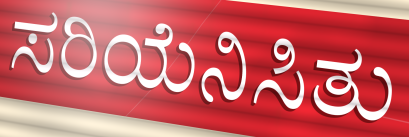
ಸರಿಯೆನಿಸಿತು